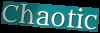
Chaotic